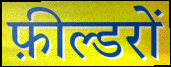
फ़ील्डरों